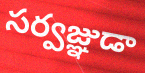
సర్వజ్ఞుడా